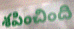
శపించింది